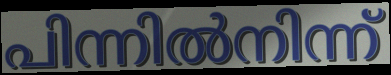
പിന്നിൽനിന്ന്